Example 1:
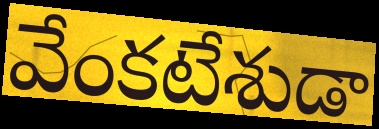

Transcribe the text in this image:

వేంకటేశుడా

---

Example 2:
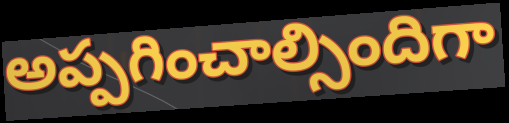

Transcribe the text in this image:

అప్పగించాల్సిందిగా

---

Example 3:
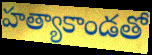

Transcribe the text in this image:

హత్యాకాండతో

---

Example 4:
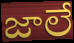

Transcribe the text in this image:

జాలే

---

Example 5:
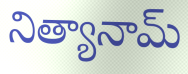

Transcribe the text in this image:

నిత్యానామ్